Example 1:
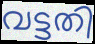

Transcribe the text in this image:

വട്ടതി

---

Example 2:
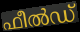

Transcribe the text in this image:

ഫീൽഡ്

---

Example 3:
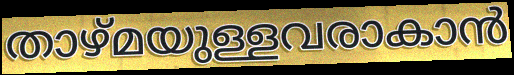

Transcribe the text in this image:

താഴ്മയുള്ളവരാകാൻ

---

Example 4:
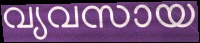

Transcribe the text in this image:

വ്യവസായ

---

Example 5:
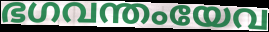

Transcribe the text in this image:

ഭഗവന്തംയേവ